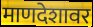
माणदेशावर